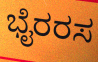
ಭೈರರಸ